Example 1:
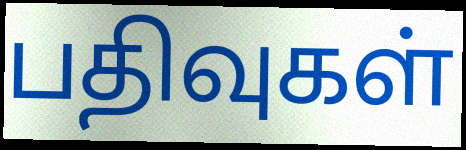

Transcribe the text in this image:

பதிவுகள்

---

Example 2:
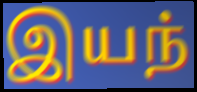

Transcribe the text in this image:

இயந்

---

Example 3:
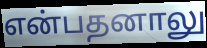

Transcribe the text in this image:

என்பதனாலு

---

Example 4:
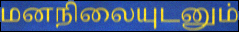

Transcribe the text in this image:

மனநிலையுடனும்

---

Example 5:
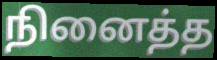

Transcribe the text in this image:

நினைத்த